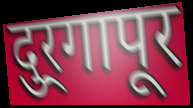
दुर्गापूर